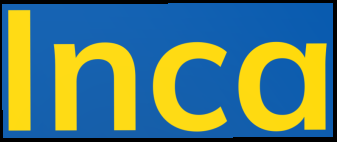
Inca